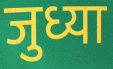
जुध्या